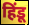
हिंडू